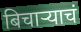
बिचाऱ्याचं